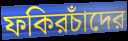
ফকিরচাঁদের